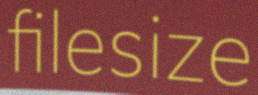
filesize